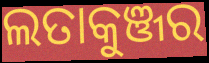
ଲତାକୁଞ୍ଜର